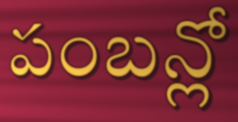
పంబన్లో